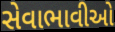
સેવાભાવીઓ